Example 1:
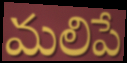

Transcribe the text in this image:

మలిపే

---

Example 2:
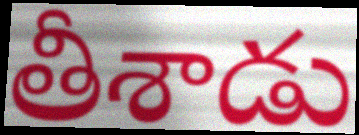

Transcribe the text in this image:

తీశాడు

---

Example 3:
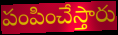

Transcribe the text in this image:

పంపించేస్తారు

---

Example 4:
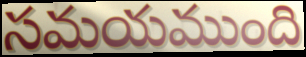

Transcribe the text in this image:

సమయముంది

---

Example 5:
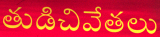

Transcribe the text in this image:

తుడిచివేతలు